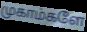
முகாம்களே